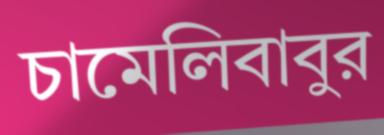
চামেলিবাবুর